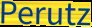
Perutz